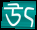
উৎ